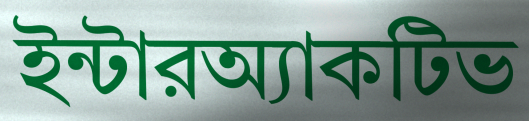
ইন্টারঅ্যাকটিভ